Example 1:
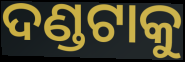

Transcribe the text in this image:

ଦଣ୍ଡଟାକୁ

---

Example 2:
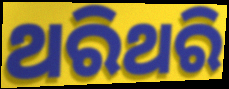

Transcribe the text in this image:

ଥରିଥରି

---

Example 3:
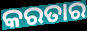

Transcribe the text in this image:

କରତାର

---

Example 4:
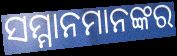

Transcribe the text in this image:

ସମ୍ମାନମାନଙ୍କର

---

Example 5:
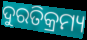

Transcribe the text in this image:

ଦୁରତିକ୍ରମ୍ୟ